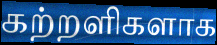
கற்றளிகளாக